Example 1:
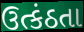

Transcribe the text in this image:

ઉત્કંઠતા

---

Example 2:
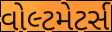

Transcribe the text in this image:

વોલ્ટમેટર્સ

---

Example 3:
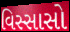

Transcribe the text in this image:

વિસ્સાસો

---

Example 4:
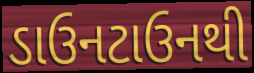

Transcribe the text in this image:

ડાઉનટાઉનથી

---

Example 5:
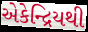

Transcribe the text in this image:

એકેન્દ્રિયથી